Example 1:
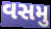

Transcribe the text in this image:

વસમુ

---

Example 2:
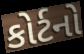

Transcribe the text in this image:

કોર્ટનો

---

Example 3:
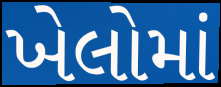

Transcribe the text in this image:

ખેલોમાં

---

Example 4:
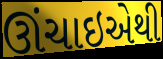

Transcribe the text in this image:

ઊંચાઇએથી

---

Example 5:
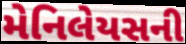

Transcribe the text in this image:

મેનિલેયસની